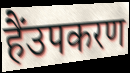
हैंउपकरण